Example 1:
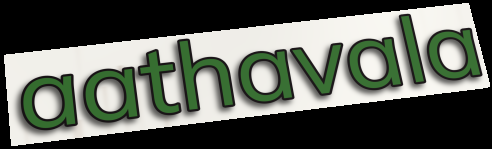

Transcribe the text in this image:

aathavala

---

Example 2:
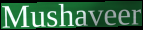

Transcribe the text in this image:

Mushaveer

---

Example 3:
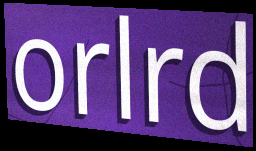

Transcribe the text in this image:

orlrd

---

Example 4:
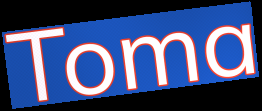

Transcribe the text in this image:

Toma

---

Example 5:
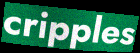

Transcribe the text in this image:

cripples